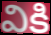
వికి